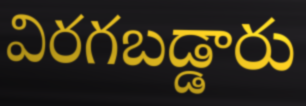
విరగబడ్డారు